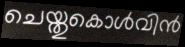
ചെയ്തുകൊൾവിൻ